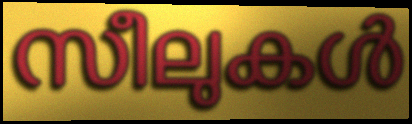
സീലുകൾ